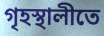
গৃহস্থালীতে